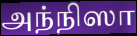
அந்நிஸா